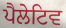
ਪੈਲੇਟਿਵ